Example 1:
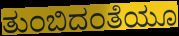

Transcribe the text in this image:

ತುಂಬಿದಂತೆಯೂ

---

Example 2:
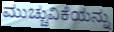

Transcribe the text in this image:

ಮುಚ್ಚುವಿಕೆಯನ್ನು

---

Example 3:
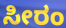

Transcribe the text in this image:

ಸೀರಂ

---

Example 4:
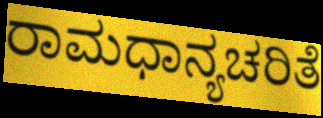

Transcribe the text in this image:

ರಾಮಧಾನ್ಯಚರಿತೆ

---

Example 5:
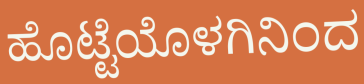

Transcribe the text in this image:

ಹೊಟ್ಟೆಯೊಳಗಿನಿಂದ